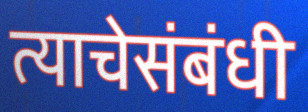
त्याचेसंबंधी